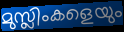
മുസ്ലിംകളെയും